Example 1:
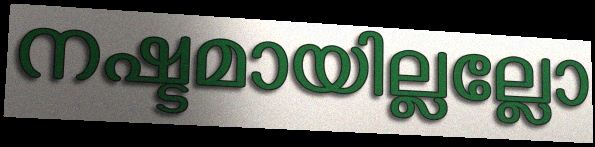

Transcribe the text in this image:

നഷ്ടമായില്ലല്ലോ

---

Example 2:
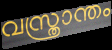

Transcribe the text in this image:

വസ്ത്രാന്തം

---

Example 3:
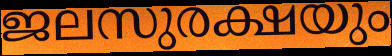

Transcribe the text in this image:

ജലസുരക്ഷയും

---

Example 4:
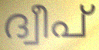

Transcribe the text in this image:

ദ്വീപ്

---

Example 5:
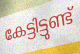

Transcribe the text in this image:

കേട്ടിട്ടുണ്ട്